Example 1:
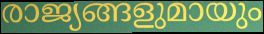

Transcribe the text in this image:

രാജ്യങ്ങളുമായും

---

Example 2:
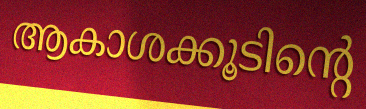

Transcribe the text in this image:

ആകാശക്കൂടിന്റെ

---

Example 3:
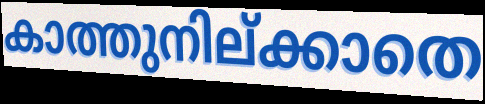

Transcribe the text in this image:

കാത്തുനില്ക്കാതെ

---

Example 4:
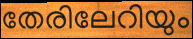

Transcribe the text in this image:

തേരിലേറിയും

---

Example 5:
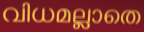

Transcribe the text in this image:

വിധമല്ലാതെ